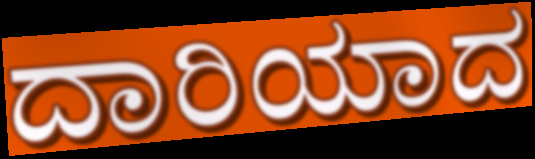
ದಾರಿಯಾದ